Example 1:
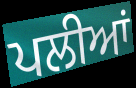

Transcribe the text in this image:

ਪਲੀਆਂ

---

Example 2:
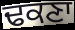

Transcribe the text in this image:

ਢਕਣਾ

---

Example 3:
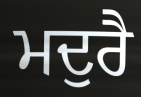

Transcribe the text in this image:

ਮਦੁਰੈ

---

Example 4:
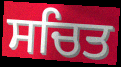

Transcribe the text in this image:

ਸਚਿਤ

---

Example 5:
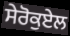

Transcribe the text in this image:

ਸੇਰੋਕੁਏਲ